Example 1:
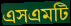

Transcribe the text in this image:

এসএমটি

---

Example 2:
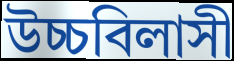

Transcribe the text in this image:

উচ্চবিলাসী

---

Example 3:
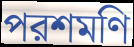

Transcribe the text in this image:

পরশমণি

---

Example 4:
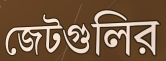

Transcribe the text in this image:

জেটগুলির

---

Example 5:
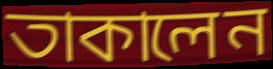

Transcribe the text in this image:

তাকালেন